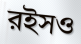
রইসও